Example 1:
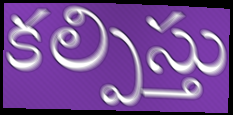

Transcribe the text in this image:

కల్పిస్తు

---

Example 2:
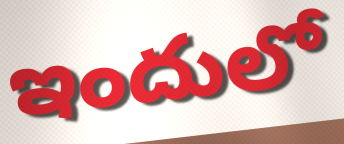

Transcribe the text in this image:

ఇందులో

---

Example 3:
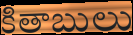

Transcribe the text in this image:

కితాబులు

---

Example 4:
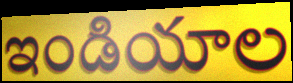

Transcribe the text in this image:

ఇండియాల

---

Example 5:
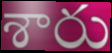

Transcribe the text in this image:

శారు